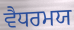
ਵੈਧਰਮਯ